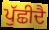
ਪੁੱਛੀਦੈ